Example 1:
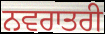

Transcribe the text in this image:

ਨਵਰਾਤਰੀ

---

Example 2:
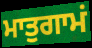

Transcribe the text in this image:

ਮਾਤੁਗਾਮਂ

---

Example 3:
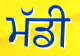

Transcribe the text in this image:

ਮੱਡੀ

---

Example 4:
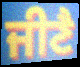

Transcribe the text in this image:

ਜੀਣੈ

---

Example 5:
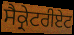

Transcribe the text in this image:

ਸੈਕ੍ਰੇਟਰੀਏਟ